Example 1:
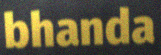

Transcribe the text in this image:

bhanda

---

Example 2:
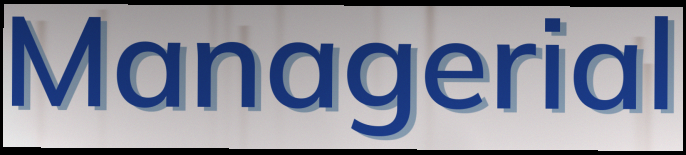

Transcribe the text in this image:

Managerial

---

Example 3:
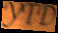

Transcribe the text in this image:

YTD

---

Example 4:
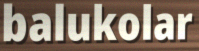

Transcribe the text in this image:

balukolar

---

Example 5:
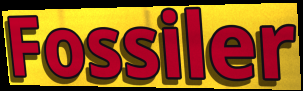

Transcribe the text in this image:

Fossiler